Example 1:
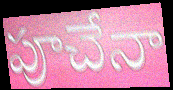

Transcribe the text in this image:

పూచేనా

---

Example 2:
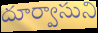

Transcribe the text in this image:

దూర్వాసుని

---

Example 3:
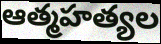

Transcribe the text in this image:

ఆత్మహత్యల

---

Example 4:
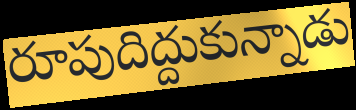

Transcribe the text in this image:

రూపుదిద్దుకున్నాడు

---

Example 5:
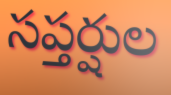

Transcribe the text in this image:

సప్తర్షుల